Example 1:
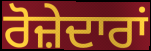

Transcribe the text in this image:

ਰੋਜ਼ੇਦਾਰਾਂ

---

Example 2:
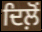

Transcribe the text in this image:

ਦਿਲ਼ੋਂ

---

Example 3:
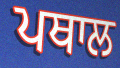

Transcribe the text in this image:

ਪਥਾਲ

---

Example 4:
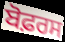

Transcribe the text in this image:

ਬੋਫ਼ਰਸ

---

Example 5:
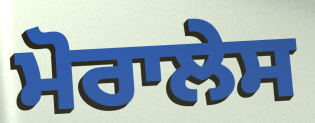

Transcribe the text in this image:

ਮੋਰਾਲੇਸ